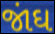
જાંઘ